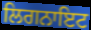
ਲਿਗਨਾਇਟ